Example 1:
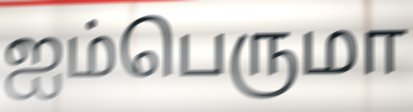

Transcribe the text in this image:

ஐம்பெருமா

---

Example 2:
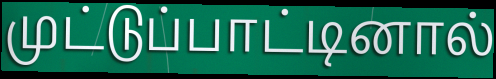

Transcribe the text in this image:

முட்டுப்பாட்டினால்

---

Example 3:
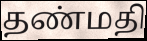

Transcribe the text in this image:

தண்மதி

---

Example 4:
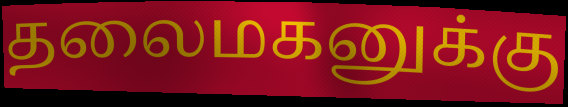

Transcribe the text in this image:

தலைமகனுக்கு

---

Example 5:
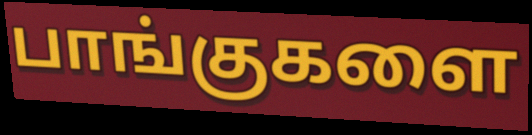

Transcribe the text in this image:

பாங்குகளை